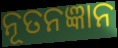
ନୂତନଜ୍ଞାନ